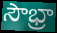
సౌభ్రా